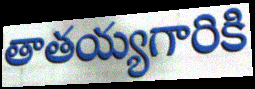
తాతయ్యగారికి